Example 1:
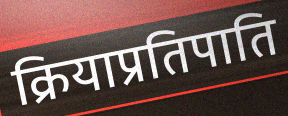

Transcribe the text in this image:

क्रियाप्रतिपाति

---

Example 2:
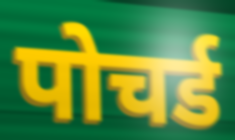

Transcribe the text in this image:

पोचर्ड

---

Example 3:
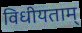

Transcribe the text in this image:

विधीयताम्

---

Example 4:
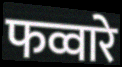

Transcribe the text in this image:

फव्‍वारे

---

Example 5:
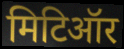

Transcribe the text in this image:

मिटिऑर